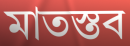
মাতস্তব